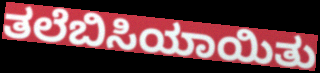
ತಲೆಬಿಸಿಯಾಯಿತು